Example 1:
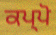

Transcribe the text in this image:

ਕਪ੍ਪੋ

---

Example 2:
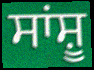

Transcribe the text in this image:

ਸਾਂਸ਼ੂ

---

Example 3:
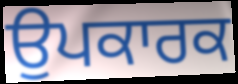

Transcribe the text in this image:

ਉਪਕਾਰਕ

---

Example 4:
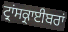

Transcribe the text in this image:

ਟ੍ਰਾਂਸਕ੍ਰਾਈਬਰਾਂ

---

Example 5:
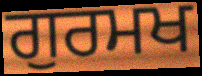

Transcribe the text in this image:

ਗੁਰਮਖ